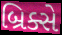
બ્રિક્સે